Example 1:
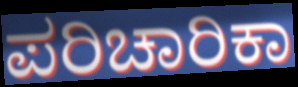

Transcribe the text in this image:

ಪರಿಚಾರಿಕಾ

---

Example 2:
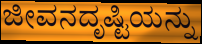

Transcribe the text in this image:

ಜೀವನದೃಷ್ಟಿಯನ್ನು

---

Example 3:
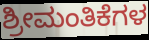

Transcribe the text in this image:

ಶ್ರೀಮಂತಿಕೆಗಳ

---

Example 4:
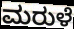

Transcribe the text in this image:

ಮರುಳೆ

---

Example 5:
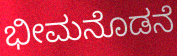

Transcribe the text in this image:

ಭೀಮನೊಡನೆ